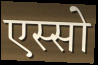
एस्सो